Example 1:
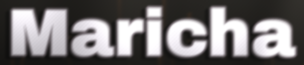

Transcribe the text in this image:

Maricha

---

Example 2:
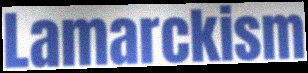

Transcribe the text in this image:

Lamarckism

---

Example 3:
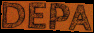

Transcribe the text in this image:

DEPA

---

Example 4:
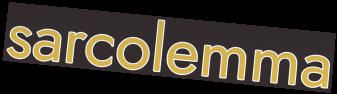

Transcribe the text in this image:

sarcolemma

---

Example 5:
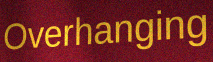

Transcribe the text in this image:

Overhanging